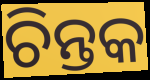
ଚିନ୍ତକ